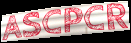
ASCPCR